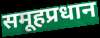
समूहप्रधान